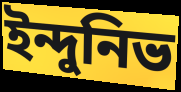
ইন্দুনিভ